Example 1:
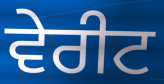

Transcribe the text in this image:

ਵੇਰੀਟ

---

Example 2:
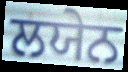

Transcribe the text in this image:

ਲਯੇਨ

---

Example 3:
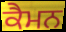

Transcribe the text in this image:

ਕੈਮਨ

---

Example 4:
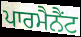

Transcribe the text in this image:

ਪਾਰਮੈਨੈਂਟ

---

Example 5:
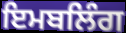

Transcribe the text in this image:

ਇਮਬਲਿੰਗ